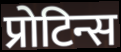
प्रोटिन्स